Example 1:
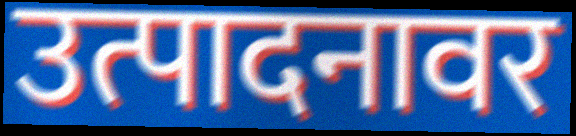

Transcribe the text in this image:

उत्पादनावर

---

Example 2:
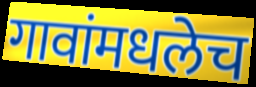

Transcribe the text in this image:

गावांमधलेच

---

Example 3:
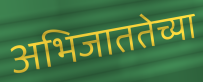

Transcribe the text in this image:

अभिजाततेच्या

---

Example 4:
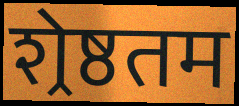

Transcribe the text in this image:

श्रेष्ठतम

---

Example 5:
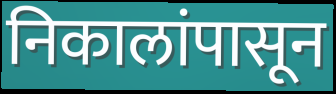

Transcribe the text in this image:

निकालांपासून